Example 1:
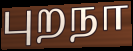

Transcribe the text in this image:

புறநா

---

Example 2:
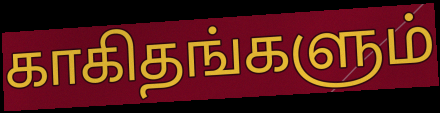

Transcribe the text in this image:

காகிதங்களும்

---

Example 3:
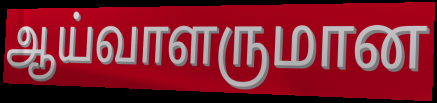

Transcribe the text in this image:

ஆய்வாளருமான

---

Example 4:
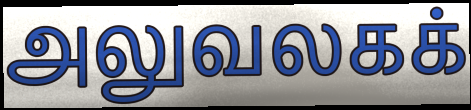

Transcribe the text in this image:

அலுவலகக்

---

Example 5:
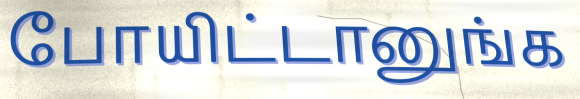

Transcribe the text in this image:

போயிட்டானுங்க